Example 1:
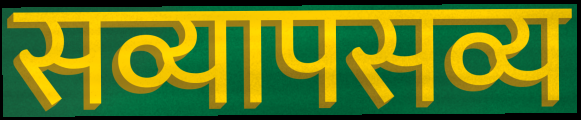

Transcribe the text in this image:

सव्यापसव्य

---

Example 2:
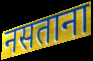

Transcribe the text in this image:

नसताना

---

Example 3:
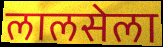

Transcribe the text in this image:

लालसेला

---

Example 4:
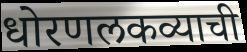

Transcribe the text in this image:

धोरणलकव्याची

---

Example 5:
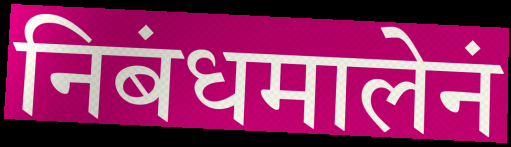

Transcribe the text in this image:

निबंधमालेनं